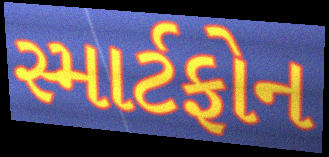
સ્માર્ટફોન